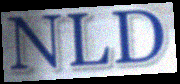
NLD